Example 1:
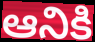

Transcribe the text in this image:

ఆనికి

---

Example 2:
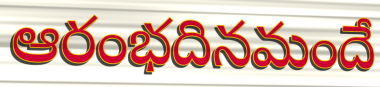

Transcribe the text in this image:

ఆరంభదినమందే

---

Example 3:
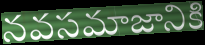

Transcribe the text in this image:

నవసమాజానికి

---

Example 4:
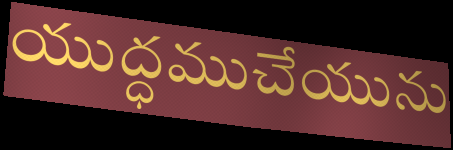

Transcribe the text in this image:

యుద్ధముచేయును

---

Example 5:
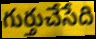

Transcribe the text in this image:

గుర్తుచేసేది